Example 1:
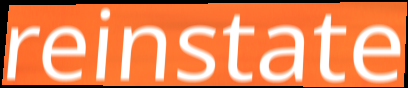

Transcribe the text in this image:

reinstate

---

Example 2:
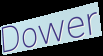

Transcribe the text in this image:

Dower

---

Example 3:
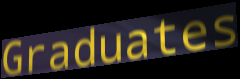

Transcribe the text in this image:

Graduates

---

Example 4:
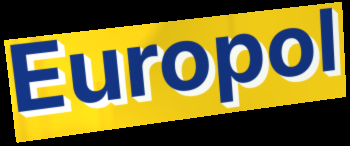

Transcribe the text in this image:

Europol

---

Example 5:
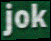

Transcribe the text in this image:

jok